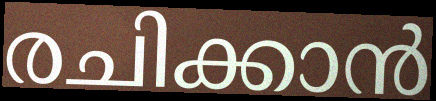
രചിക്കാൻ